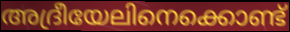
അദ്രീയേലിനെക്കൊണ്ട്